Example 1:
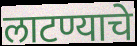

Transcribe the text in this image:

लाटण्याचे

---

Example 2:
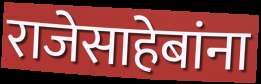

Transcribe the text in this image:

राजेसाहेबांना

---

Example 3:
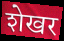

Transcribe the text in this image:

शेखर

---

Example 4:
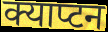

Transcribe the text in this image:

क्याप्टन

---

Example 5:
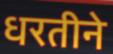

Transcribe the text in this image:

धरतीने